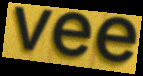
vee